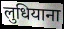
लुधियाना